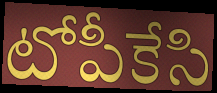
టోపీకేసి